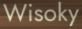
Wisoky